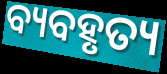
ବ୍ୟବହୃତ୍ୟ